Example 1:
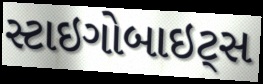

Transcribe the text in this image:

સ્ટાઇગોબાઇટ્સ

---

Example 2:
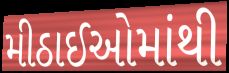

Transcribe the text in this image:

મીઠાઈઓમાંથી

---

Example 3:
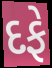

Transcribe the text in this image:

દફે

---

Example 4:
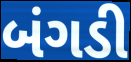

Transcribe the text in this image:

બંગડી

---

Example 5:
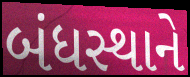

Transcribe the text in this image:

બંધસ્થાને